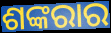
ଶଙ୍କରାର